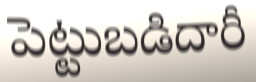
పెట్టుబడిదారీ